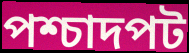
পশ্চাদপট